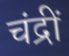
चंद्रीं